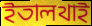
ইতালথাই